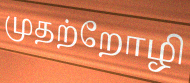
முதற்றோழி